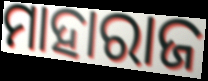
ମାହାରାଜ